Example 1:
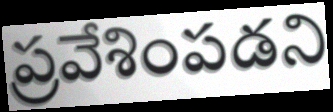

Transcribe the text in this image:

ప్రవేశింపడని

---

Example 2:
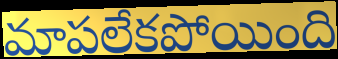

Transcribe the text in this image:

మాపలేకపోయింది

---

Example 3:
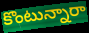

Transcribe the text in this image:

కొంటున్నారా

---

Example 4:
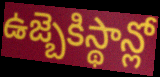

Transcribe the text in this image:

ఉజ్బెకిస్థాన్లో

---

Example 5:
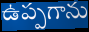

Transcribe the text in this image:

ఉప్పగాను